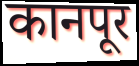
कानपूर